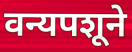
वन्यपशूने